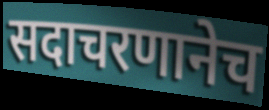
सदाचरणानेच